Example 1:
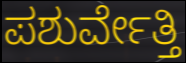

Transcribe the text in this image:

ಪಶುರ್ವೇತ್ತಿ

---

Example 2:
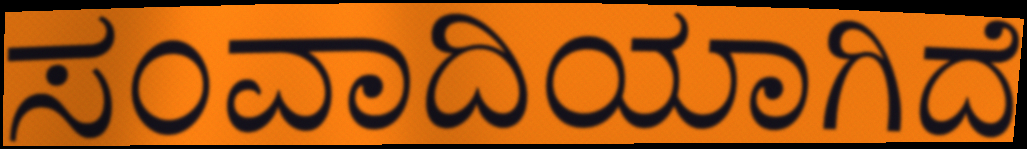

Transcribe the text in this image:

ಸಂವಾದಿಯಾಗಿದೆ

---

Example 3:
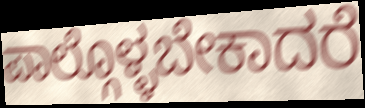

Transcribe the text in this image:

ಪಾಲ್ಗೊಳ್ಳಬೇಕಾದರೆ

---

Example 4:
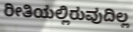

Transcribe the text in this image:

ರೀತಿಯಲ್ಲಿರುವುದಿಲ್ಲ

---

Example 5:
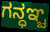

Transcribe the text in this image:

ಗನ್ಧಞ್ಚ